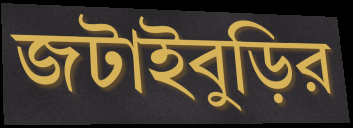
জটাইবুড়ির